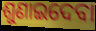
ଶୁଣାଇଦେବା